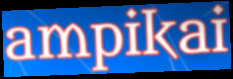
ampikai